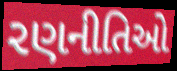
રણનીતિઓ